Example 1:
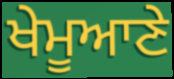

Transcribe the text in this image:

ਖੇਮੂਆਣੇ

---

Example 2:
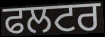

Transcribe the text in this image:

ਫਲਟਰ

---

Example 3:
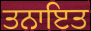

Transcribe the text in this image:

ਤਨਾਇਤ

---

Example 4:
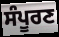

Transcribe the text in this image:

ਸੰਪੂਰਣ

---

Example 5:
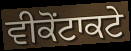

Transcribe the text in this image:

ਵੀਕੋਂਟਾਕਟੇ